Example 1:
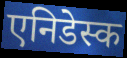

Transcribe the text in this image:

एनिडेस्क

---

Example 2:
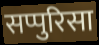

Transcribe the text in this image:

सप्पुरिसा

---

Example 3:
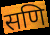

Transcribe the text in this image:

सणि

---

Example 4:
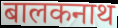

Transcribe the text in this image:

बालकनाथ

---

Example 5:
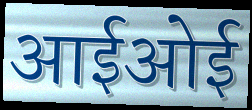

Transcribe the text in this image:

आईओई